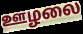
ஊழலை